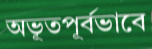
অভূতপূর্বভাবে